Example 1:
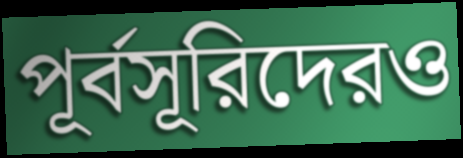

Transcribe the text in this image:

পূর্বসূরিদেরও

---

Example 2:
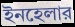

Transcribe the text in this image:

ইনহেলার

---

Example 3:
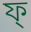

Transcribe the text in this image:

ফ্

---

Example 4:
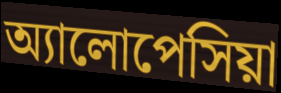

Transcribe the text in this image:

অ্যালোপেসিয়া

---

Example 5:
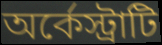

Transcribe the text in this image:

অর্কেস্ট্রাটি